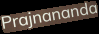
Prajnananda